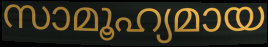
സാമൂഹ്യമായ